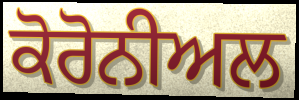
ਕੋਰੋਨੀਅਲ